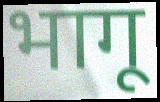
भागू